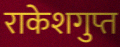
राकेशगुप्त